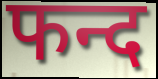
फन्द